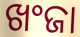
ଖଂଜା